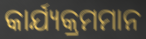
କାର୍ଯ୍ୟକ୍ରମମାନ